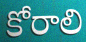
కోరాలి